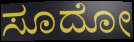
ಸೂದೋ